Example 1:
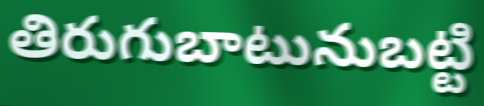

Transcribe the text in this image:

తిరుగుబాటునుబట్టి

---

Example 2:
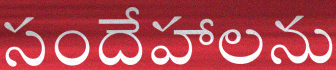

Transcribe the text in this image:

సందేహాలను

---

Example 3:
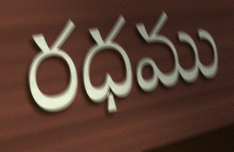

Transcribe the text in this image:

రధము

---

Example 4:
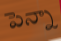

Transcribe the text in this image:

పెన్నా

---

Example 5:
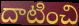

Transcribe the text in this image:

దాటించి